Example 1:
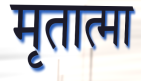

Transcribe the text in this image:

मृतात्मा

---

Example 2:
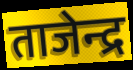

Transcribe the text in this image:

ताजेन्द्र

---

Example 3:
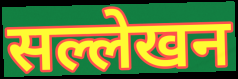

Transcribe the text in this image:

सल्लेखन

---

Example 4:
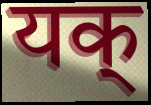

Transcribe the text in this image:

यक्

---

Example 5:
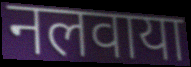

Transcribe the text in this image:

नलवाया